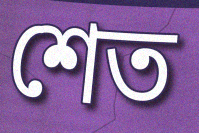
শেত